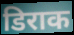
डिराक